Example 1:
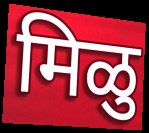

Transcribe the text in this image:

मिळु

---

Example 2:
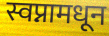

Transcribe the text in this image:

स्वप्नामधून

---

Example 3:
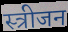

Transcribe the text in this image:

स्त्रीजन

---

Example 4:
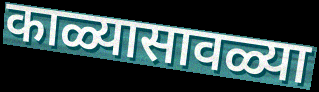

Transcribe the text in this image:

काळ्यासावळ्या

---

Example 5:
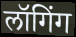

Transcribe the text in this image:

लॉगिंग